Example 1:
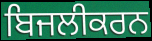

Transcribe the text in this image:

ਬਿਜਲੀਕਰਨ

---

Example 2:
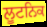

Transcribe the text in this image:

ਲੂਟਨਿਕ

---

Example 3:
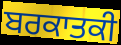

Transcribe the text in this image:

ਬਰਕਾਤਕੀ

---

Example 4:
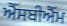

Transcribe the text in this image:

ਐੱਸਬੀਐੱਮ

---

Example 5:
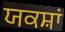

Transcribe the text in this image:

ਯਕਸ਼ਾਂ